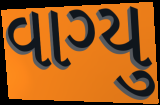
વાગ્યુ